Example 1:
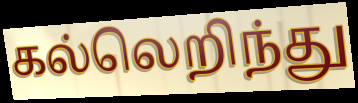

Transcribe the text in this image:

கல்லெறிந்து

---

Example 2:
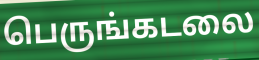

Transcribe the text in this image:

பெருங்கடலை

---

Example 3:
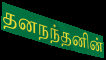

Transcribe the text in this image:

தனநந்தனின்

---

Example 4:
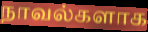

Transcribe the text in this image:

நாவல்களாக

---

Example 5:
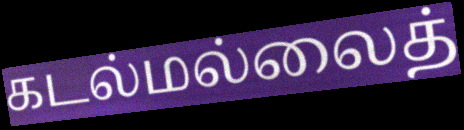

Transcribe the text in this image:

கடல்மல்லைத்